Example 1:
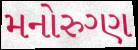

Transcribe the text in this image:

મનોરુગ્ણ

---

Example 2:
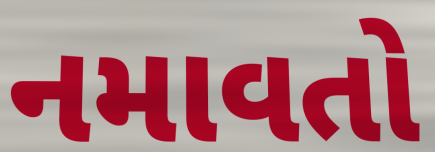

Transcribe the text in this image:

નમાવતો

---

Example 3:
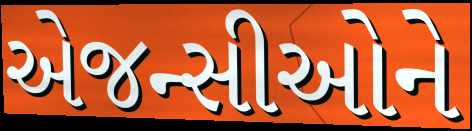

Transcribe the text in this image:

એજન્સીઓને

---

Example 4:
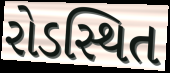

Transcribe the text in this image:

રોડસ્થિત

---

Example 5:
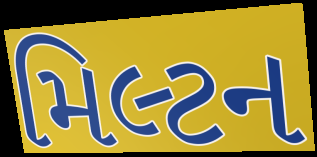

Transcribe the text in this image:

મિલ્ટન